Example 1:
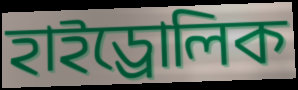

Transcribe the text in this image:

হাইড্রোলিক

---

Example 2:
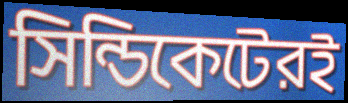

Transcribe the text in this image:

সিন্ডিকেটেরই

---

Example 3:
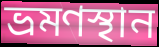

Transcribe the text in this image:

ভ্রমণস্থান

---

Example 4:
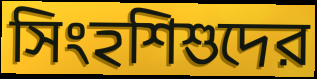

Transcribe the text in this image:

সিংহশিশুদের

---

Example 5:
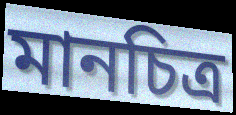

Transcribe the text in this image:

মানচিত্র